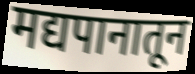
मद्यपानातून